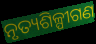
ନୃତ୍ୟଶିଳ୍ପୀଗଣ